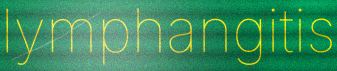
lymphangitis